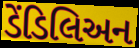
ડેંડિલિઅન